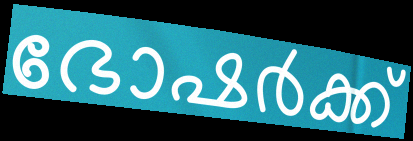
ഭോഷർക്ക്